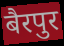
बैरपुर